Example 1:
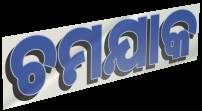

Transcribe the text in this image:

ଚମଯାକ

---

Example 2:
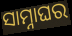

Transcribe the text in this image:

ସାମ୍ନାଘର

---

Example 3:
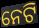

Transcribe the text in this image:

ନେଟି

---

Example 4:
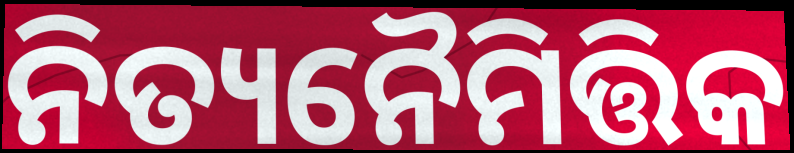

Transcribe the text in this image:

ନିତ୍ୟନୈମିତ୍ତିକ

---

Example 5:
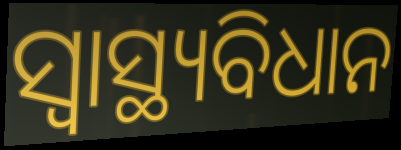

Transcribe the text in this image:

ସ୍ୱାସ୍ଥ୍ୟବିଧାନ